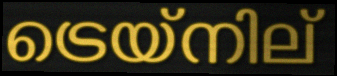
ട്രെയ്നില്